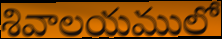
శివాలయములో